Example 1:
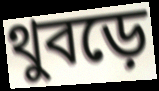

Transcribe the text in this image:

থুবড়ে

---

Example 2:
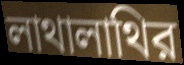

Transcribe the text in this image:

লাথালাথির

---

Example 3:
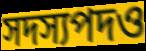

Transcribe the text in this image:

সদস্যপদও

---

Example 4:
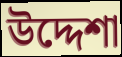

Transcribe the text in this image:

উদ্দেশা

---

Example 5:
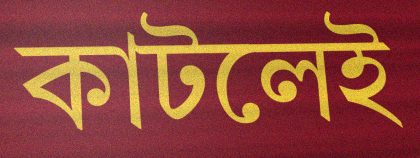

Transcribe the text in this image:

কাটলেই